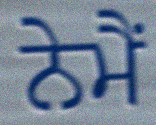
ਨੇਮੈਂ